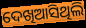
ଦେଖିଆସିଥିଲି